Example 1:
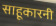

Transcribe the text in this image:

साहूकारनी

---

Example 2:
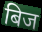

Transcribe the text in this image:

बिज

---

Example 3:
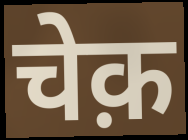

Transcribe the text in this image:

चेक़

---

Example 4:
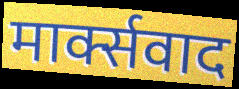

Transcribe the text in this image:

मार्क्सवाद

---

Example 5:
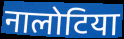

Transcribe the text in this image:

नालोटिया